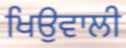
ਖਿਉਵਾਲੀ